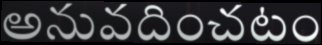
అనువదించటం